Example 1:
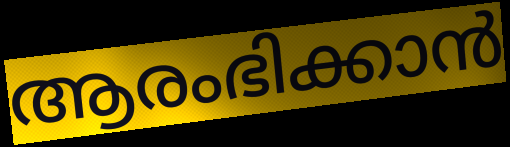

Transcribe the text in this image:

ആരംഭിക്കാൻ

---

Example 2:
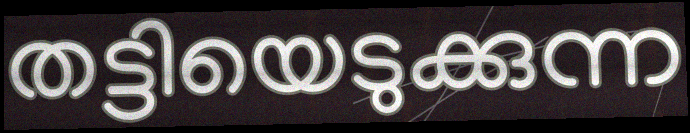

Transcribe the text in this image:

തട്ടിയെടുക്കുന്ന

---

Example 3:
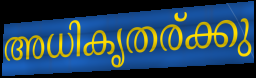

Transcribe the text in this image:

അധികൃതര്ക്കു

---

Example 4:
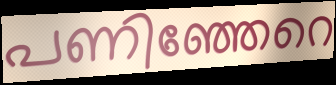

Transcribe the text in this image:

പണിഞ്ഞേറെ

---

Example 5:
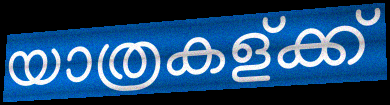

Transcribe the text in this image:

യാത്രകള്ക്ക്